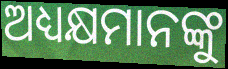
ଅଧ୍ୟକ୍ଷମାନଙ୍କୁ